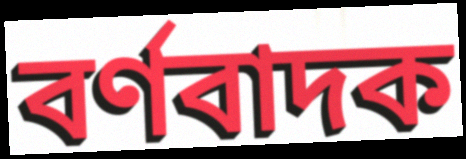
বৰ্ণবাদক